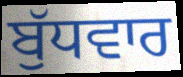
ਬੁੱਧਵਾਰ